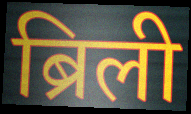
ब्रिली